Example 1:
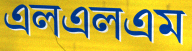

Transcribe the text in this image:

এলএলএম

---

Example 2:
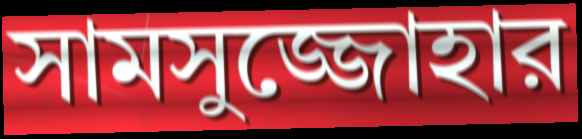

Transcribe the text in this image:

সামসুজ্জোহার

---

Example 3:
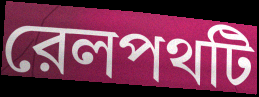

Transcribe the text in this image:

রেলপথটি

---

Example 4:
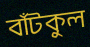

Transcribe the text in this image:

বাঁটকুল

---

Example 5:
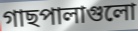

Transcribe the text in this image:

গাছপালাগুলো